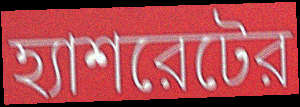
হ্যাশরেটের